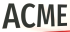
ACME